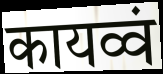
कायव्वं